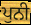
ਪੁਨੀ